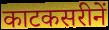
काटकसरीनें